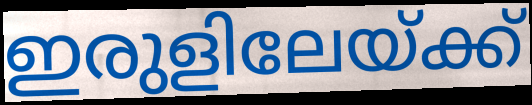
ഇരുളിലേയ്ക്ക്